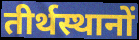
तीर्थस्थानों